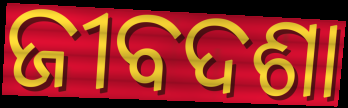
ଜୀବଦଶା